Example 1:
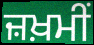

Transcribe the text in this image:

ਜ਼ਖ਼ਮੀਂ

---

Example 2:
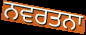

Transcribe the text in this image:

ਨਵਰਤਨਾ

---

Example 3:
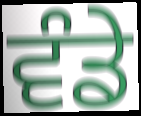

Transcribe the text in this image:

ਵੰਡੇ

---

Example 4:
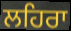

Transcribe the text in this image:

ਲਹਿਰਾ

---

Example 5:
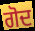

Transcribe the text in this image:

ਗੋਦ